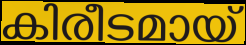
കിരീടമായ്